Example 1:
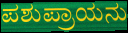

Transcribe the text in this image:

ಪಶುಪ್ರಾಯನು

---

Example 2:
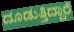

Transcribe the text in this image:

ದೂಡುತ್ತಿದ್ದಾರೆ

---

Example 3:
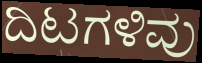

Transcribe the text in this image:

ದಿಟಗಳಿವು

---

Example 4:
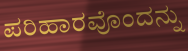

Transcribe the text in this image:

ಪರಿಹಾರವೊಂದನ್ನು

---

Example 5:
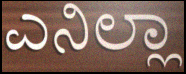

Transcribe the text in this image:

ಎನಿಲ್ಲಾ